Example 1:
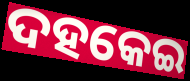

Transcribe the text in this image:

ଦହକେଇ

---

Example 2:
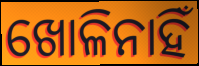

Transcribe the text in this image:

ଖୋଳିନାହିଁ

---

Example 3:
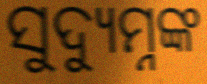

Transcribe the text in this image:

ସୁଦ୍ୟୁମ୍ନଙ୍କ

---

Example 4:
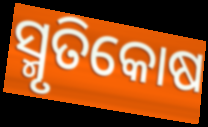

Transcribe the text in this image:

ସ୍ମୃତିକୋଷ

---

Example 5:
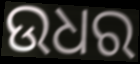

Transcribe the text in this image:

ଉଧର